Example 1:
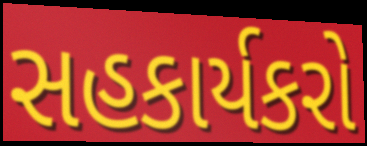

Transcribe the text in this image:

સહકાર્યકરો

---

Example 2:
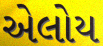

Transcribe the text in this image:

એલોય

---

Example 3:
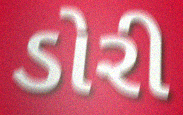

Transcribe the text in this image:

ડોરી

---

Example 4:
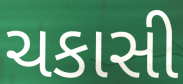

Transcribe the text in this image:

ચકાસી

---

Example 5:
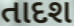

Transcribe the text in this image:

તાદશ